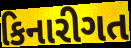
કિનારીગત